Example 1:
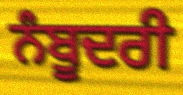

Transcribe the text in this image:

ਨੰਬੂਦਰੀ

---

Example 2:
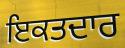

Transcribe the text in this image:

ਇਕਤਦਾਰ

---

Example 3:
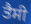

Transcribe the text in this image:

ਤੈਸੀ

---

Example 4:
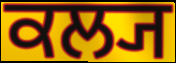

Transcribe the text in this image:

ਕਲ੍ਯ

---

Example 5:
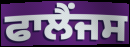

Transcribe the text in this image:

ਫਾਲੈਂਜਸ